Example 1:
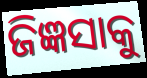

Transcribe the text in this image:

ଜିଜ୍ଞସାକୁ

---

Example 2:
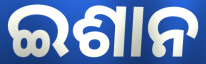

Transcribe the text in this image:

ଇଶାନ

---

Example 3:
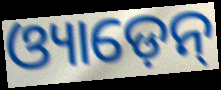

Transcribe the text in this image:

ଓ୍ୟାଡ଼େନ୍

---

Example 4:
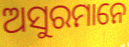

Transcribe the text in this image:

ଅସୁରମାନେ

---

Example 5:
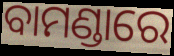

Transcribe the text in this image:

ବାମଣ୍ଡାରେ